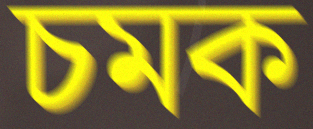
চমক